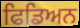
ਫਿਡਿਅਨ